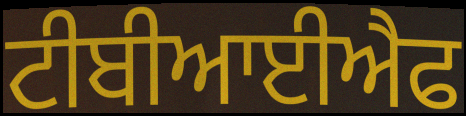
ਟੀਬੀਆਈਐਫ